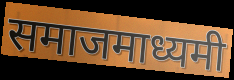
समाजमाध्यमी